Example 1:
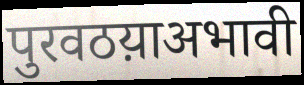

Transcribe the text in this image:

पुरवठय़ाअभावी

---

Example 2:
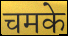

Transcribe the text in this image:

चमके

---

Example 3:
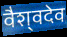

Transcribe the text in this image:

वैश्वदेव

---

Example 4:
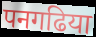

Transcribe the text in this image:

पनगढिया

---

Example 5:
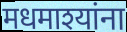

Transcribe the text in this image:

मधमाश्यांना